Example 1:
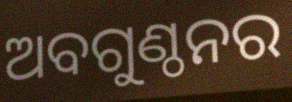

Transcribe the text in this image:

ଅବଗୁଣ୍ଠନର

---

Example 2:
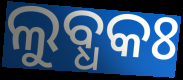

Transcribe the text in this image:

ଲୁବ୍ଧକଃ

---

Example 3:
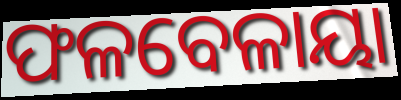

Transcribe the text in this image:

ଫଳବେଳାୟା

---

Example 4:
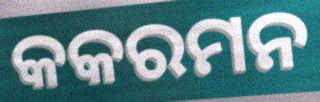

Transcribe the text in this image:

କକରମନ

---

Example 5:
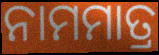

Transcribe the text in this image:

ନାମମାତ୍ର